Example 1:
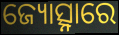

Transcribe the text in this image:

ଜ୍ୟୋତ୍ସ୍ନାରେ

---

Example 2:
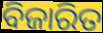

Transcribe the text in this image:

ବିଜାରିତ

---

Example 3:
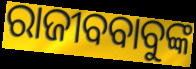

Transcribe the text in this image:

ରାଜୀବବାବୁଙ୍କ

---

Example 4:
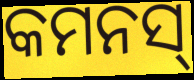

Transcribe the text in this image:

କମନସ୍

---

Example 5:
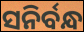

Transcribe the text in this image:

ସନିର୍ବନ୍ଧ